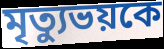
মৃত্যুভয়কে